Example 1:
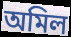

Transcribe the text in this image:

অমিল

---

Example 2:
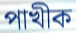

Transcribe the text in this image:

পাখীক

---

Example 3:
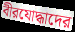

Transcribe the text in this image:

বীরযোদ্ধাদের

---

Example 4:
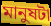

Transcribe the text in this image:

মানুষটা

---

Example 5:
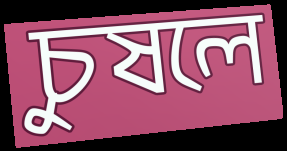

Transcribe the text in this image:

চুষলে